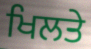
ਖਿਲਤੇ